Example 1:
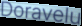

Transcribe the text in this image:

Doravelu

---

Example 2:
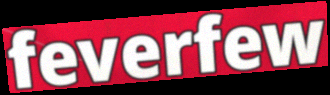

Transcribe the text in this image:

feverfew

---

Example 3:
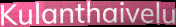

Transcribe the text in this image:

Kulanthaivelu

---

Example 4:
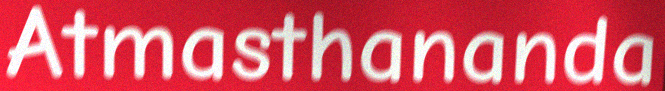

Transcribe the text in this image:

Atmasthananda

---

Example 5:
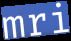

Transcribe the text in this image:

mri